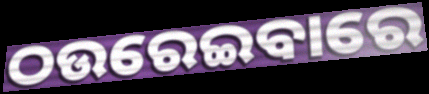
ଠଉରେଇବାରେ